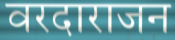
वरदाराजन